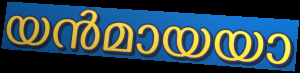
യൻമായയാ